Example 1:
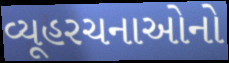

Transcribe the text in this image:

વ્યૂહરચનાઓનો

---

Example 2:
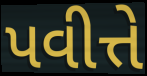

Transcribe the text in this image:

પવીત્તે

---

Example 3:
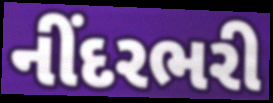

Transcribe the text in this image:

નીંદરભરી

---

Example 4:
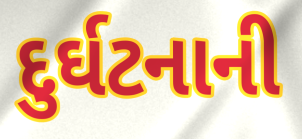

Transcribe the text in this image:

દુર્ઘટનાની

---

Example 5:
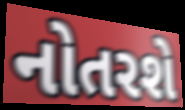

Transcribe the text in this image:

નોતરશે